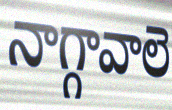
నాగ్గావాలె